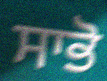
ਸਾਭੋ